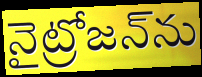
నైట్రోజన్‌ను